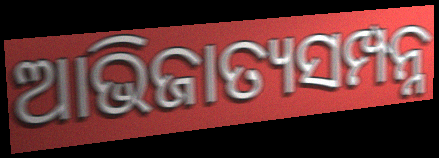
ଆଭିଜାତ୍ୟସମ୍ପନ୍ନ